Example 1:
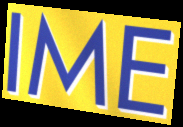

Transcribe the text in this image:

IME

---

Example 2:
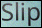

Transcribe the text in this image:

Slip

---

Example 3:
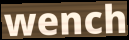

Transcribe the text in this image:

wench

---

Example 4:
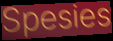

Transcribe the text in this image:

Spesies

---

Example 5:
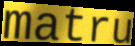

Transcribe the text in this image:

matru